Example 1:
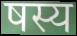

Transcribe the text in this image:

षस्य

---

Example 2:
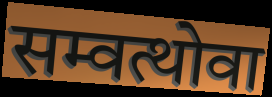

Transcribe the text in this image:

सम्वत्थोवा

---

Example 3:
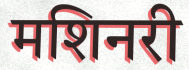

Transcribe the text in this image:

मशिनरी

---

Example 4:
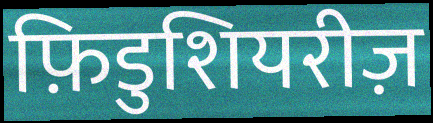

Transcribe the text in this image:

फ़िडुशियरीज़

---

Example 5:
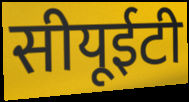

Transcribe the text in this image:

सीयूईटी